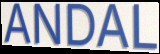
ANDAL